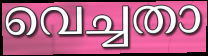
വെച്ചതാ